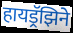
हायड्रॅझिने